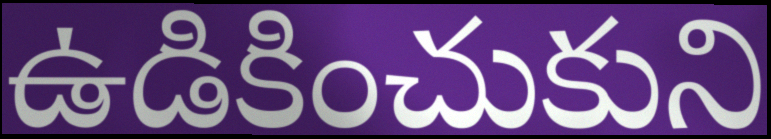
ఉడికించుకుని